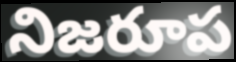
నిజరూప